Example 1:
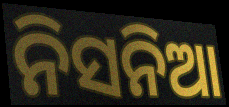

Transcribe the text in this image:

ନିସନିଆ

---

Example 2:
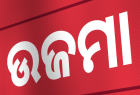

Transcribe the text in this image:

ଉଜମା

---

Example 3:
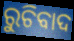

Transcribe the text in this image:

ରୁଚିବାଦ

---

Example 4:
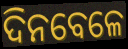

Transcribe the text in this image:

ଦିନବେଳେ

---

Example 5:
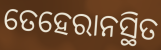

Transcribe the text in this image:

ତେହେରାନସ୍ଥିତ